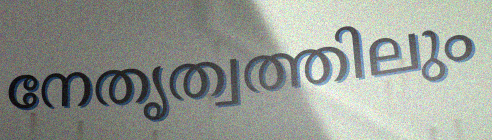
നേതൃത്വത്തിലും